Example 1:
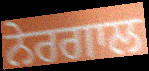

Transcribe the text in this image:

ਨੇਰਗਾਲ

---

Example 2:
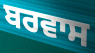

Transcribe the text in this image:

ਬਰਵਾਸ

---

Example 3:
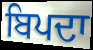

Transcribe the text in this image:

ਬਿਪਦਾ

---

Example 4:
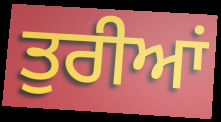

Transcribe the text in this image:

ਤੁਰੀਆਂ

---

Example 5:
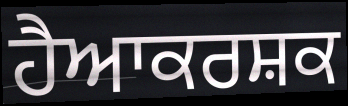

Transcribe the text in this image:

ਹੈਆਕਰਸ਼ਕ